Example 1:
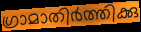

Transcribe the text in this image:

ഗ്രാമാതിർത്തിക്കു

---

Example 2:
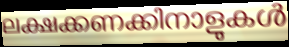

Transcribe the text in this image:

ലക്ഷക്കണക്കിനാളുകൾ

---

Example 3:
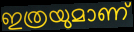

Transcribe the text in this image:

ഇത്രയുമാണ്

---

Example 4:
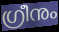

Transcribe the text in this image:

ഗ്രീനും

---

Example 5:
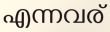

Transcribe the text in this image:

എന്നവര്